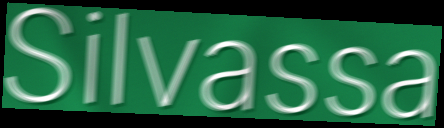
Silvassa